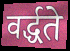
वर्द्धते